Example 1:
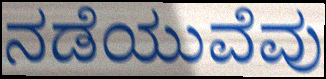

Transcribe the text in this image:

ನಡೆಯುವೆವು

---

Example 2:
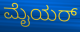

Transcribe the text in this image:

ಮೈಯರ್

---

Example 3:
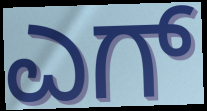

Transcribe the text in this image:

ಎಗ್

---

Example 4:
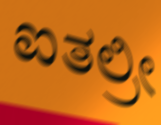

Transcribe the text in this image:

ಐತಲ್ರೀ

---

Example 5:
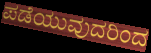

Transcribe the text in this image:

ಪಡೆಯುವುದರಿಂದ